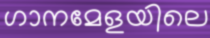
ഗാനമേളയിലെ